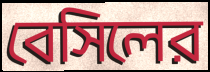
বেসিলের